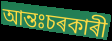
আন্তঃচৰকাৰী